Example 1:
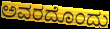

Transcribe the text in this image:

ಅವರದೊಂದು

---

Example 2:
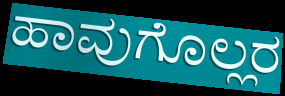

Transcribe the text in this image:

ಹಾವುಗೊಲ್ಲರ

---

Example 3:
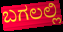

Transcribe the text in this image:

ಬಗಲಲ್ಲಿ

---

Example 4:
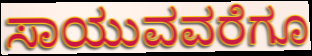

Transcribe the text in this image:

ಸಾಯುವವರೆಗೂ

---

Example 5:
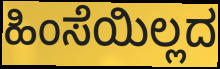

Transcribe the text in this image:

ಹಿಂಸೆಯಿಲ್ಲದ